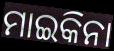
ମାଇକିନା